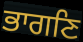
ਭਾਗਣਿ